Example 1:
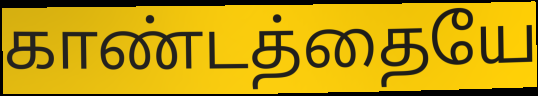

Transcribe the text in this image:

காண்டத்தையே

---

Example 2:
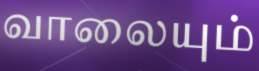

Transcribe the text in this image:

வாலையும்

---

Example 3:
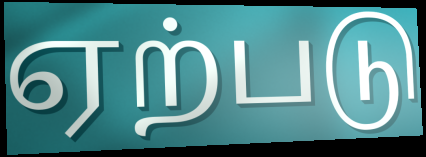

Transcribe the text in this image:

ஏற்படு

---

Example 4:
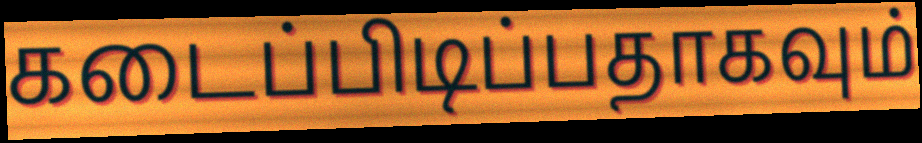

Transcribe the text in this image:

கடைப்பிடிப்பதாகவும்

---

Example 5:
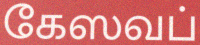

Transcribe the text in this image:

கேஸவப்